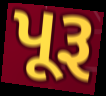
પૂરૂ